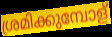
ശ്രമിക്കുമ്പോള്